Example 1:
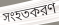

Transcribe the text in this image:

সংহতকরণ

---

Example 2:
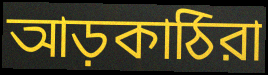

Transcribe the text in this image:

আড়কাঠিরা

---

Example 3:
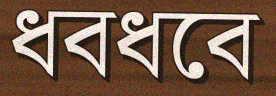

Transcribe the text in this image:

ধবধবে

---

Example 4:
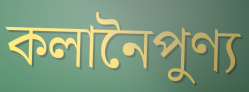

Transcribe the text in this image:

কলানৈপুণ্য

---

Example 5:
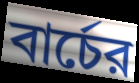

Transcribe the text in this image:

বার্চের